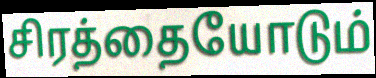
சிரத்தையோடும்